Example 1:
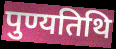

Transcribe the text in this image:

पुण्यतिथि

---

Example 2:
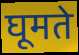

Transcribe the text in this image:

घूमते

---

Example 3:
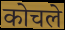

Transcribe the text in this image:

कोचले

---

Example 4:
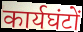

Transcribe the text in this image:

कार्यघंटों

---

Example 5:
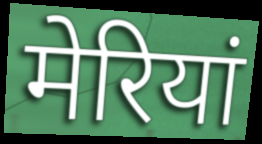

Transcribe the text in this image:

मेरियां